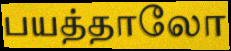
பயத்தாலோ